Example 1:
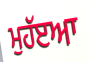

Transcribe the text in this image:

ਮੁਹੱੲਆ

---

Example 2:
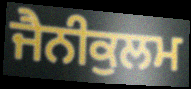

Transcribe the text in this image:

ਜੈਨੀਕੁਲਮ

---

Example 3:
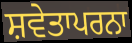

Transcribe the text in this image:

ਸ਼ਵੇਤਾਪਰਨਾ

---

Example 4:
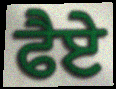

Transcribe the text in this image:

ਫੈਏ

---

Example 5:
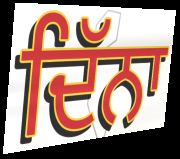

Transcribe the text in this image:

ਦਿੱਨਾ